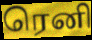
ரெனி